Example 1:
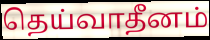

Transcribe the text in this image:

தெய்வாதீனம்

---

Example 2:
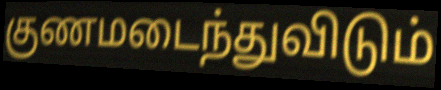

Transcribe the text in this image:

குணமடைந்துவிடும்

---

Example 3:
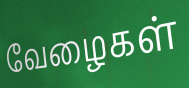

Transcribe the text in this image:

வேழைகள்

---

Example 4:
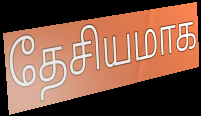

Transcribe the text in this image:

தேசியமாக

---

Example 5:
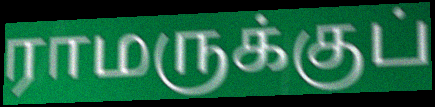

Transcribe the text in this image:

ராமருக்குப்